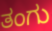
ತಂಗು